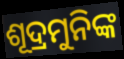
ଶୂଦ୍ରମୁନିଙ୍କ